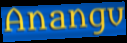
Anangu